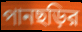
পানছড়ির